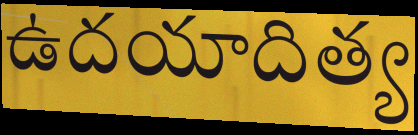
ఉదయాదిత్య